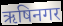
ऋषिनगर